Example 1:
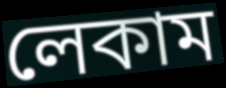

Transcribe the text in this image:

লেকাম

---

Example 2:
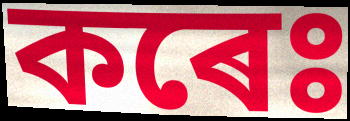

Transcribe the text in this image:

কৰেঃ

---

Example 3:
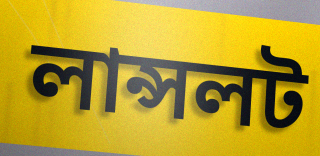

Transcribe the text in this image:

লান্সলট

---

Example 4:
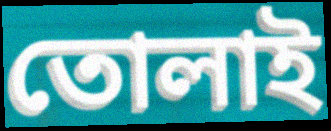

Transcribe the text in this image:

তোলাই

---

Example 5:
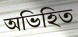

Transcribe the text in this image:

অভিহিত